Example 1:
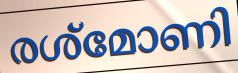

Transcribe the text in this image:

രശ്മോണി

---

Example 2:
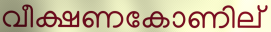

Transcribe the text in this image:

വീക്ഷണകോണില്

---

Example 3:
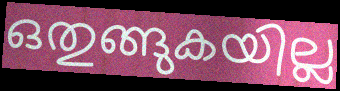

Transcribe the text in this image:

ഒതുങ്ങുകയില്ല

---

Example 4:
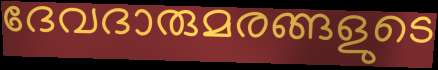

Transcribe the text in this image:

ദേവദാരുമരങ്ങളുടെ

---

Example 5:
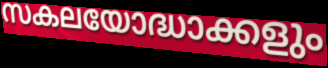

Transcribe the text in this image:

സകലയോദ്ധാക്കളും